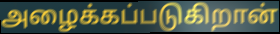
அழைக்கப்படுகிறான்